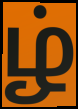
ழ்